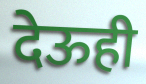
देऊही